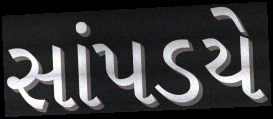
સાંપડયે